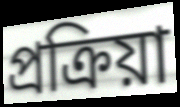
প্রক্রিয়া